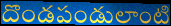
దొండపండులాంటి